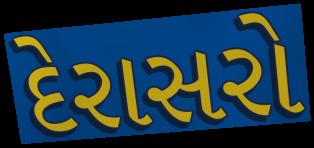
દેરાસરો